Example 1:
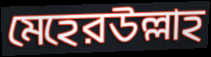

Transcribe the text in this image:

মেহেরউল্লাহ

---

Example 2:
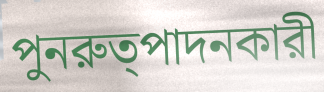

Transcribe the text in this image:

পুনরুত্পাদনকারী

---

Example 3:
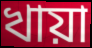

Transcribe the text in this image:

খায়া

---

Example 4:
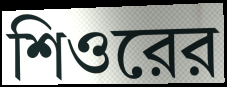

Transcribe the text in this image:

শিওরের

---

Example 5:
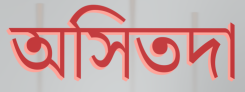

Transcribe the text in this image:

অসিতদা